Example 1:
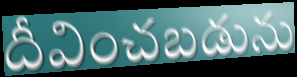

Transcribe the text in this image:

దీవించబడును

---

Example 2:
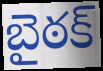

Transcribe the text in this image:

బైఠక్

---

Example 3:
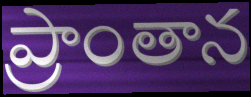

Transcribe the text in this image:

ప్రాంతాన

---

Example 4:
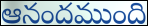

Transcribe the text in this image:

ఆనందముంది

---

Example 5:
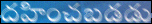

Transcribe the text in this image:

దహించబడడు